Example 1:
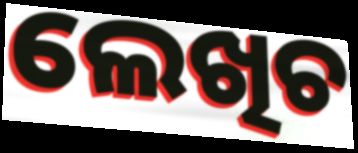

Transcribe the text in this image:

ଲେଖିଚ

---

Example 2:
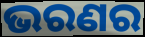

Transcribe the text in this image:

ଭରଣର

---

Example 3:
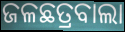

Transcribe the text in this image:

ଜଳଛତ୍ରବାଲା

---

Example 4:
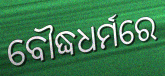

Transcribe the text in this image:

ବୌଦ୍ଧଧର୍ମରେ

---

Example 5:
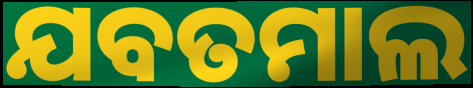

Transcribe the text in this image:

ଯବତମାଲ